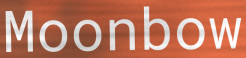
Moonbow